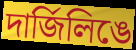
দার্জিলিঙে